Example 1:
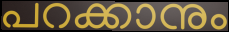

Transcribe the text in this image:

പറക്കാനും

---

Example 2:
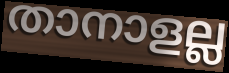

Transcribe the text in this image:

താനാളല്ല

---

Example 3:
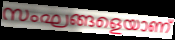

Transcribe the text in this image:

സംഘങ്ങളെയാണ്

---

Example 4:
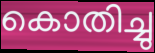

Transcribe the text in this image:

കൊതിച്ചു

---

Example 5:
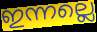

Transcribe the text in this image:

ഇന്നല്ലെ